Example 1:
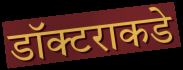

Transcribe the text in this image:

डॉक्टराकडे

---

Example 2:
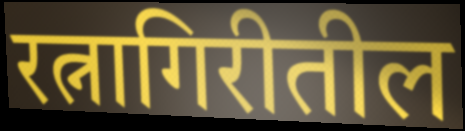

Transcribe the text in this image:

रत्नागिरीतील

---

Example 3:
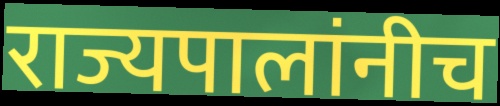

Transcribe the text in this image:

राज्यपालांनीच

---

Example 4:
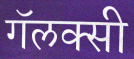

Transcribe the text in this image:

गॅलक्सी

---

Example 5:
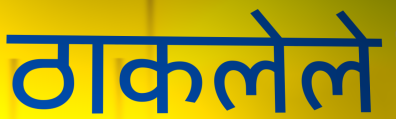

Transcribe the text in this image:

ठाकलेले